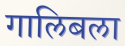
गालिबला